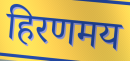
हिरणमय